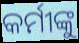
କର୍ମୀଙ୍କୁ